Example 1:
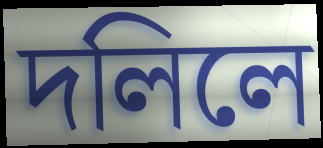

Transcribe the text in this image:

দলিলে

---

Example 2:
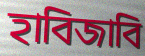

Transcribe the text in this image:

হাবিজাবি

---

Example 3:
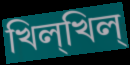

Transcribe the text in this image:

খিল্খিল্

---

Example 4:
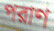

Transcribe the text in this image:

পরাণ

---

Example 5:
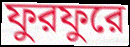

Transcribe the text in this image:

ফুরফুরে